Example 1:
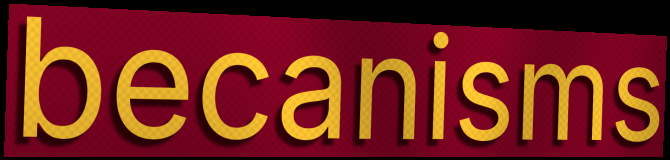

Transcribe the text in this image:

becanisms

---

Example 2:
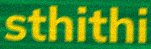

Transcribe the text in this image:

sthithi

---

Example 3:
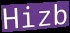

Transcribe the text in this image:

Hizb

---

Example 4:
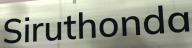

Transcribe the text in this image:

Siruthonda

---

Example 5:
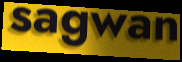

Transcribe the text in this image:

sagwan